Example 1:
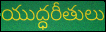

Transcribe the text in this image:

యుద్ధరీతులు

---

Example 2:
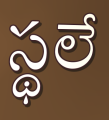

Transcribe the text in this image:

స్థలే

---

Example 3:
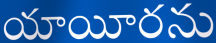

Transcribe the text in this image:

యాయీరను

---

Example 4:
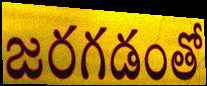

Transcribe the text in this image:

జరగడంతో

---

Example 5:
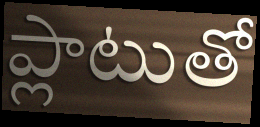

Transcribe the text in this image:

ప్లాటుతో